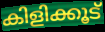
കിളിക്കൂട്